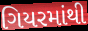
ગિયરમાંથી